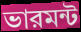
ভারমন্ট